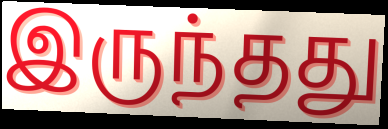
இருந்தது